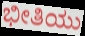
ಭೀತಿಯು